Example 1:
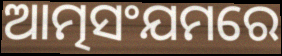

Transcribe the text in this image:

ଆତ୍ମସଂଯମରେ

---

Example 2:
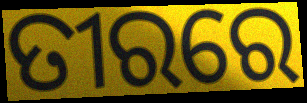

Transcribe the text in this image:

ତୀରରେ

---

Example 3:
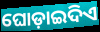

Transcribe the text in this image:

ଘୋଡ଼ାଇଦିଏ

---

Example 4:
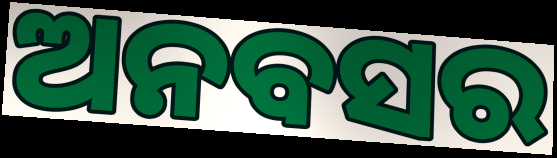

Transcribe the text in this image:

ଅନବସର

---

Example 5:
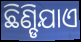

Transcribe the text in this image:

ଛିଣ୍ଡିଯାଏ